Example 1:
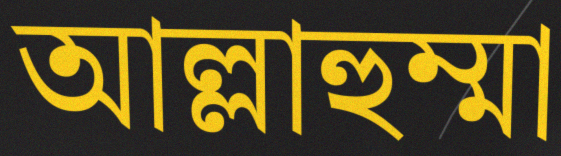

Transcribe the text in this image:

আল্লাহুম্মা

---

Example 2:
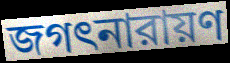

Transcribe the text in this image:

জগৎনারায়ণ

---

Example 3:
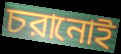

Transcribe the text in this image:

চরানোই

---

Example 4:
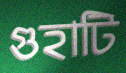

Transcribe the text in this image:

গুহাটি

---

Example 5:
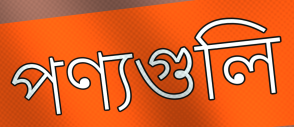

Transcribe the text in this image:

পণ্যগুলি